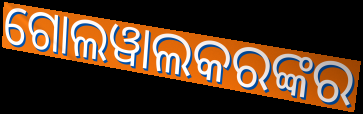
ଗୋଲୱାଲକରଙ୍କର